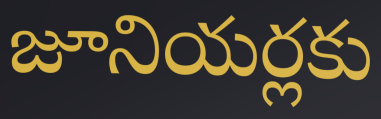
జూనియర్లకు